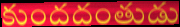
కుందదంతుడు